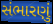
સંભારણું